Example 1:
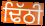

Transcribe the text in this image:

ਢਿੱਠੀ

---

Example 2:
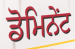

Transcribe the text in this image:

ਡੋਮਿਨੇਂਟ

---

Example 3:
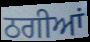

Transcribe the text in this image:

ਠਗੀਆਂ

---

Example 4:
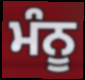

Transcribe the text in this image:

ਮੰਨੂ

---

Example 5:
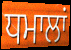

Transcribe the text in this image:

ਧਮਾਲਾਂ